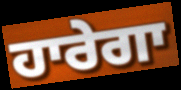
ਹਾਰੇਗਾ